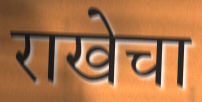
राखेचा